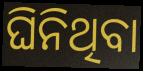
ଘିନିଥିବା